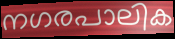
നഗരപാലിക